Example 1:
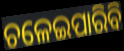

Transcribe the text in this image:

ଚଳେଇପାରିବି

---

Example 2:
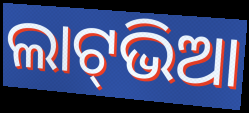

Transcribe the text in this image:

ଲାଟ୍‍ଭିଆ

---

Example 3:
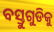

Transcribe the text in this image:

ବସ୍ତୁଗୁଡିକୁ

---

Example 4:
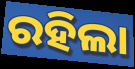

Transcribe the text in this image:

ରହିଲା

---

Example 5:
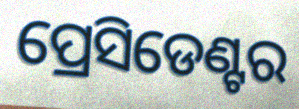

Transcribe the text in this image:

ପ୍ରେସିଡେଣ୍ଟର